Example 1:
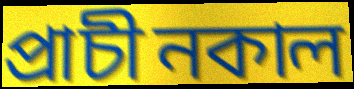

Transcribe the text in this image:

প্রাচীনকাল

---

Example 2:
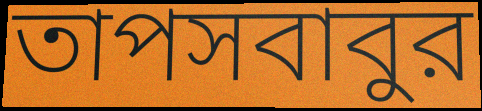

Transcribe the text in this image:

তাপসবাবুর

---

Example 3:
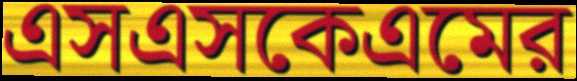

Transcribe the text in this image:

এসএসকেএমের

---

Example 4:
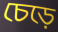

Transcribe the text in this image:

চেড়ে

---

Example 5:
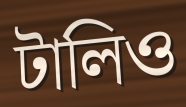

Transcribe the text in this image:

টালিও